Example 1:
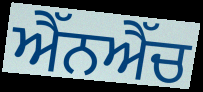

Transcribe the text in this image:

ਐੱਨਐੱਚ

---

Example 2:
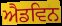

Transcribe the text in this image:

ਐਡਵਿਨ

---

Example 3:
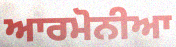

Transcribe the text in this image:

ਆਰਮੋਨੀਆ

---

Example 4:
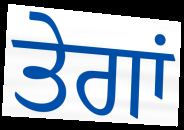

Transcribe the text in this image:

ਤੇਗਾਂ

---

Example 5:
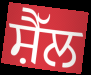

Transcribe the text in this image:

ਸ਼ੈੱਲ